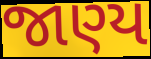
જાણ્ય